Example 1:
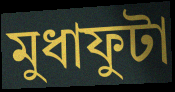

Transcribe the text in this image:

মুধাফুটা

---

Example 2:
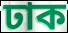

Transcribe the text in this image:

ঢাক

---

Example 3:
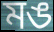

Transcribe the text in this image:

মঙ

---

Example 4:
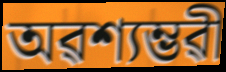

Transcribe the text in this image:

অৱশ্যম্ভৱী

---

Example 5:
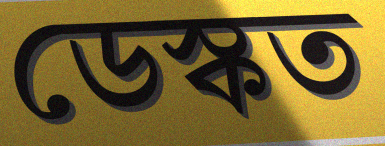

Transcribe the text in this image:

ডেস্কত